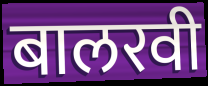
बालरवी